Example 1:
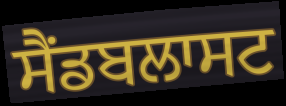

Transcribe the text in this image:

ਸੈਂਡਬਲਾਸਟ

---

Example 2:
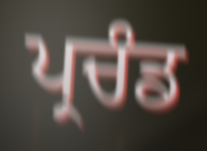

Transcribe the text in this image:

ਪ੍ਰਚੰਡ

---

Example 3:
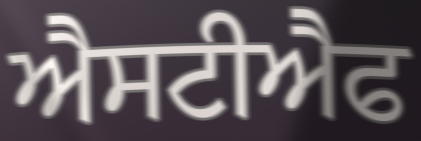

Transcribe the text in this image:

ਐਸਟੀਐਫ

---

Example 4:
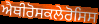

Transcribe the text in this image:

ਐਥੀਰੋਸਕਲੇਰੋਸਿਸ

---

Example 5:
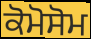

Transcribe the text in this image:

ਕੋਮੋਸੋਮ